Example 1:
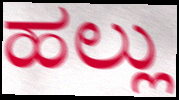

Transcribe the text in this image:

ಹಲ್ಲು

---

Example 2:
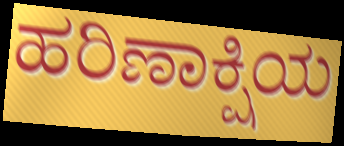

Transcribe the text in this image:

ಹರಿಣಾಕ್ಷಿಯ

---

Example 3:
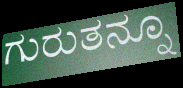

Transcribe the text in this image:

ಗುರುತನ್ನೂ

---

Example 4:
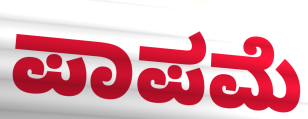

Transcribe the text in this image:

ಪಾಪಮೆ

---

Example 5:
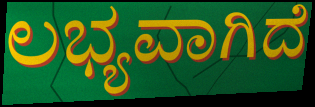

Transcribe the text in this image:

ಲಭ್ಯವಾಗಿದೆ